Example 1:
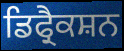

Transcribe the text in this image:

ਡਿਫ੍ਰੈਕਸ਼ਨ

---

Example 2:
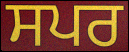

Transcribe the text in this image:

ਸਪਰ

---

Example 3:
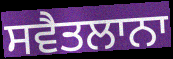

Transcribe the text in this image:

ਸਵੈਤਲਾਨਾ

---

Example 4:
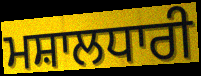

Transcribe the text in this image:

ਮਸ਼ਾਲਧਾਰੀ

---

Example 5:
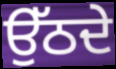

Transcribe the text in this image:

ਉੱਠਦੇ